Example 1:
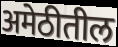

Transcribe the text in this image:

अमेठीतील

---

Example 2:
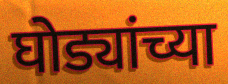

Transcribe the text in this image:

घोड्यांच्या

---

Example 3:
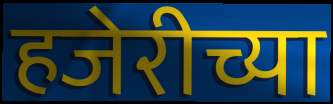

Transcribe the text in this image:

हजेरीच्या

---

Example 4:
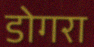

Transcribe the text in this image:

डोगरा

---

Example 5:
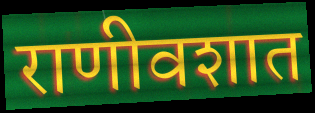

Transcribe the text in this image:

राणीवशात